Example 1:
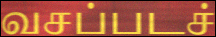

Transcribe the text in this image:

வசப்படச்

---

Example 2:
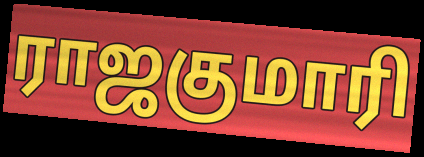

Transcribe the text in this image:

ராஜகுமாரி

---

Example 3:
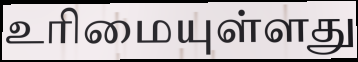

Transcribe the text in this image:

உரிமையுள்ளது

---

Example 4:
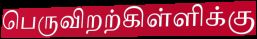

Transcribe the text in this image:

பெருவிறற்கிள்ளிக்கு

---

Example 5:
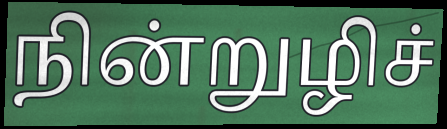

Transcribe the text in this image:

நின்றுழிச்